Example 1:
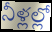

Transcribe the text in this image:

నీళ్లల్లో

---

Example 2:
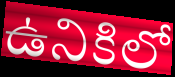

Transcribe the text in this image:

ఉనికిలో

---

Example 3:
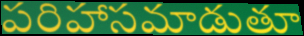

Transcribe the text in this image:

పరిహాసమాడుతూ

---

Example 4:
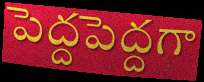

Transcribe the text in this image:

పెద్దపెద్దగా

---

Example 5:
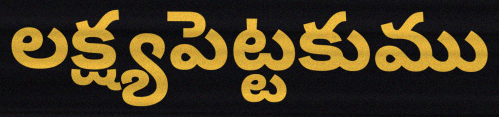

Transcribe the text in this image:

లక్ష్యపెట్టకుము